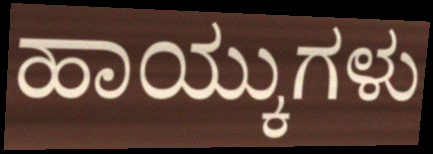
ಹಾಯ್ಕುಗಳು